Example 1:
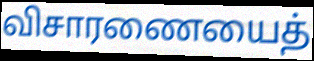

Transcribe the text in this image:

விசாரணையைத்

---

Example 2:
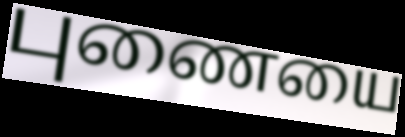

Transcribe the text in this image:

புணையை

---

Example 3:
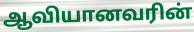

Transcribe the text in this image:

ஆவியானவரின்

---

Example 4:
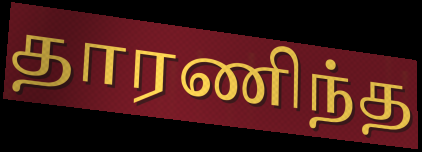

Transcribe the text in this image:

தாரணிந்த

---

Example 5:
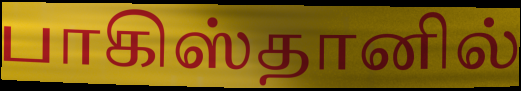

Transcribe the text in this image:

பாகிஸ்தானில்